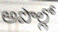
అపొల్లో